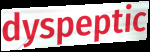
dyspeptic